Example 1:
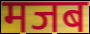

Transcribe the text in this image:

मजब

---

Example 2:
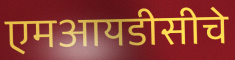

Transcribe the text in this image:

एमआयडीसीचे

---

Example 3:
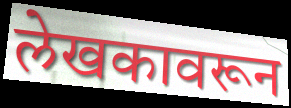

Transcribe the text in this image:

लेखकावरून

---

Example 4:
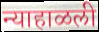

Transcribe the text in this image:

न्याहाळली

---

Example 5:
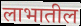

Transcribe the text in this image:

लाभातील